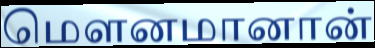
மௌனமானான்